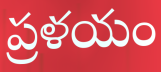
ప్రళయం